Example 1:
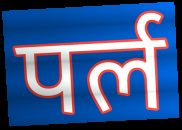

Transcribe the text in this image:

पर्ल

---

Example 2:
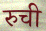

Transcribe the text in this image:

रुची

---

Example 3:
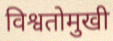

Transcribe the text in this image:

विश्वतोमुखी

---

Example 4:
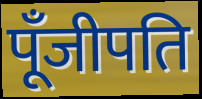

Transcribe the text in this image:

पूँजीपति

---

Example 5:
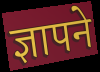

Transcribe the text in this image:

ज्ञापने